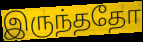
இருந்ததோ